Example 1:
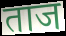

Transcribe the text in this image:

ताज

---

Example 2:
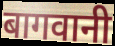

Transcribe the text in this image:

बागवानी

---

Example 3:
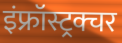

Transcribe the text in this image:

इंफ्रॉस्ट्रक्चर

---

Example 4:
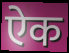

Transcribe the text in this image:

ऐक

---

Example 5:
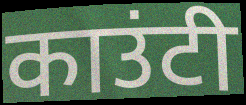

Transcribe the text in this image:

काउंटी